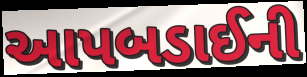
આપબડાઈની